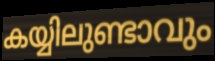
കയ്യിലുണ്ടാവും